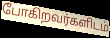
போகிறவர்களிடம்